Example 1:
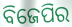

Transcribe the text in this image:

ବିଜେପିର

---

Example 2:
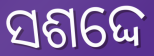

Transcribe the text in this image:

ସଶଦ୍ଦେ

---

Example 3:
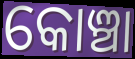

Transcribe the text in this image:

କୋଞ୍ଚା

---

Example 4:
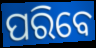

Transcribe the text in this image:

ପରିବେ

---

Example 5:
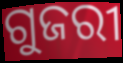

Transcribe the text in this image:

ଗୁଜରୀ